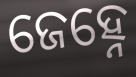
ଜେହ୍ନେ